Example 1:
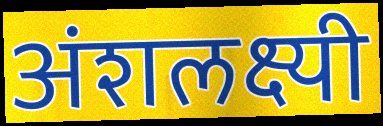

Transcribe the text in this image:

अंशलक्ष्यी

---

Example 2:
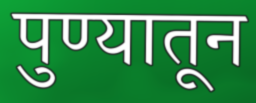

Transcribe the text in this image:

पुण्यातून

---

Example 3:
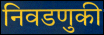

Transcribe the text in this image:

निवडणुकी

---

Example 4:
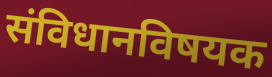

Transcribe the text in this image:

संविधानविषयक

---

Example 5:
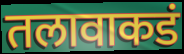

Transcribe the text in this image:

तलावाकडं